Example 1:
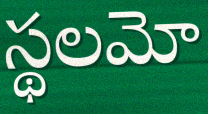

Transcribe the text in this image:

స్థలమో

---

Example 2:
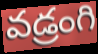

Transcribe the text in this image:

వడ్రంగి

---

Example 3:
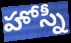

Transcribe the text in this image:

హోస్నీ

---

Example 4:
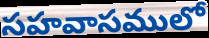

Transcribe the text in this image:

సహవాసములో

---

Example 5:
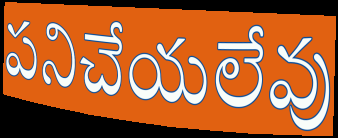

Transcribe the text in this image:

పనిచేయలేవు